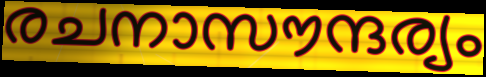
രചനാസൗന്ദര്യം